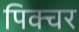
पिक्चर